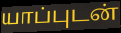
யாப்புடன்